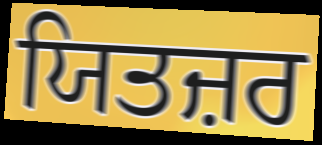
ਯਿਤਜ਼ਰ